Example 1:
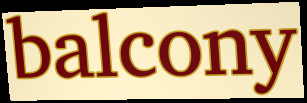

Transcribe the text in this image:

balcony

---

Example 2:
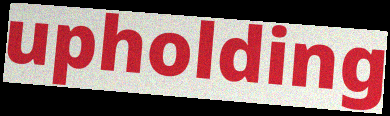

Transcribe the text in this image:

upholding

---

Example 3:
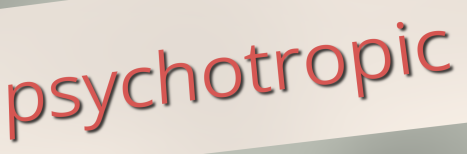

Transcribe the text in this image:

psychotropic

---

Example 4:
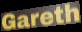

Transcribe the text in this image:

Gareth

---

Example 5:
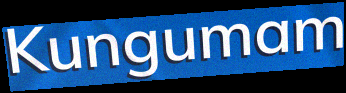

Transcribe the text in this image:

Kungumam